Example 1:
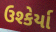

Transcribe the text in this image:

ઉશ્કેર્યા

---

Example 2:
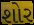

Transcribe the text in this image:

શોર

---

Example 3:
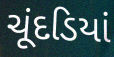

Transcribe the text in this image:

ચૂંદડિયાં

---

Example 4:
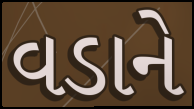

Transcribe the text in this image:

વડાને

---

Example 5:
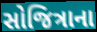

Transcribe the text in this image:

સોજિત્રાના